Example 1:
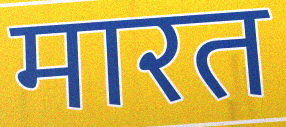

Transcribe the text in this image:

मारत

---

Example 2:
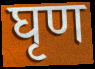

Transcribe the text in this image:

घृण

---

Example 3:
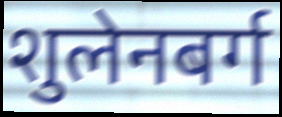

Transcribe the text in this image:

शुलेनबर्ग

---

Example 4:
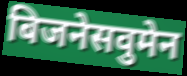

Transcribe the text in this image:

बिजनेसवुमेन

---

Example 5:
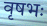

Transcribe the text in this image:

वृषभः